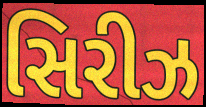
સિરીઝ